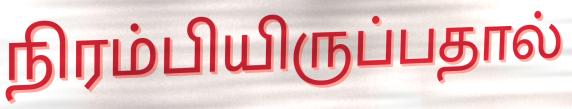
நிரம்பியிருப்பதால்